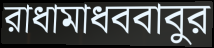
রাধামাধববাবুর